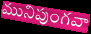
మునిపుంగవా